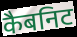
कैबनिट